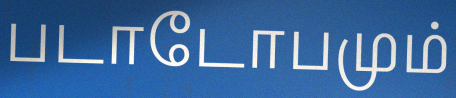
படாடோபமும்